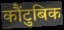
कौंटुबिक